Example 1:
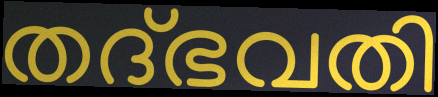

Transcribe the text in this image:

തദ്ഭവതി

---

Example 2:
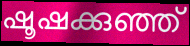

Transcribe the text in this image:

ഷൂഷക്കുഞ്ഞ്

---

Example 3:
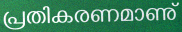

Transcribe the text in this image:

പ്രതികരണമാണു്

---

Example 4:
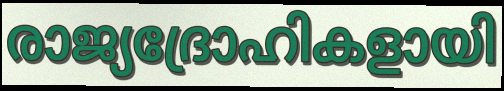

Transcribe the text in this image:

രാജ്യദ്രോഹികളായി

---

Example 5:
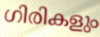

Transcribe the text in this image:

ഗിരികളും